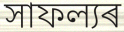
সাফল্যৰ